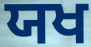
ਯਖ